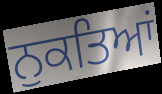
ਨੁਕਤਿਆਂ